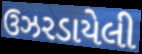
ઉઝરડાયેલી